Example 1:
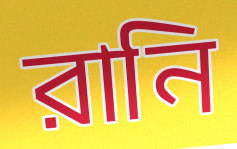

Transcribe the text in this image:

রানি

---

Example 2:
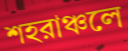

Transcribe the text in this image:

শহরাঞ্চলে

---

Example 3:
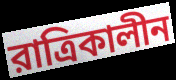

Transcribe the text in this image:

রাত্রিকালীন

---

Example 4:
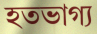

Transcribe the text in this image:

হতভাগ্য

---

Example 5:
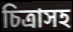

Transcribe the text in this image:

চিত্রাসহ